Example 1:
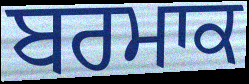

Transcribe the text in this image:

ਬਰਮਾਕ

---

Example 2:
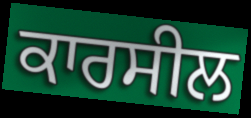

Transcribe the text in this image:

ਕਾਰਸੀਲ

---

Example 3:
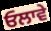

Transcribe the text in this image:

ਓਲਾਵੇ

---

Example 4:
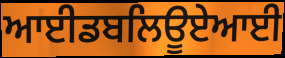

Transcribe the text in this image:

ਆਈਡਬਲਿਊਏਆਈ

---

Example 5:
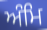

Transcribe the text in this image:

ਅੰਮਿ